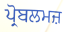
ਪ੍ਰੋਬਲਮਜ਼